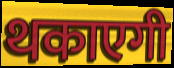
थकाएगी